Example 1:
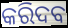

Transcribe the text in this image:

କରିଦବ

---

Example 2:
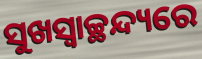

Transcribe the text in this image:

ସୁଖସ୍ଵାଚ୍ଛନ୍ଦ୍ୟରେ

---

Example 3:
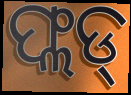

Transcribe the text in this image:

ଫ୍ଲଡ୍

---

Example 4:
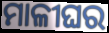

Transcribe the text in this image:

ମାଳୀଘର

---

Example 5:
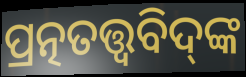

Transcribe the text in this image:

ପ୍ରତ୍ନତତ୍ତ୍ୱବିଦ୍‌ଙ୍କ